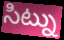
సిట్ను